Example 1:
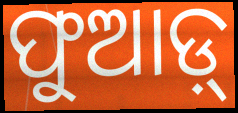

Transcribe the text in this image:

ଫୁଆଡ଼୍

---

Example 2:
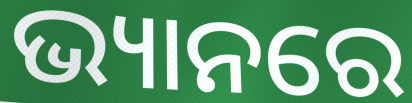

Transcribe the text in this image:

ଭ୍ୟାନରେ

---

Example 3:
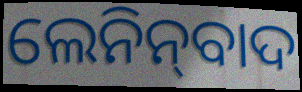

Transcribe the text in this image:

ଲେନିନ୍‌ବାଦ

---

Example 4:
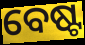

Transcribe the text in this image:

ବେଷ୍ଟ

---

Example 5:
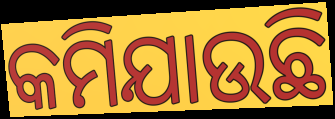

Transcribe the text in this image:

କମିଯାଉଛି